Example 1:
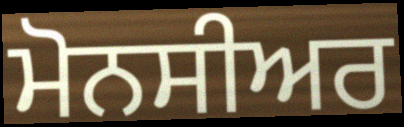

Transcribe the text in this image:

ਮੋਨਸੀਅਰ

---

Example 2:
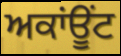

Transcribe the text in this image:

ਅਕਾਂਊਂਟ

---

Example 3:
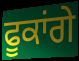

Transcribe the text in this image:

ਫੂਕਾਂਗੇ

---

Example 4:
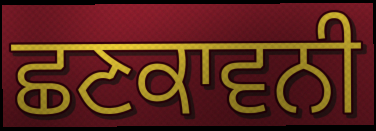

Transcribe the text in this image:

ਛਣਕਾਵਨੀ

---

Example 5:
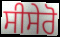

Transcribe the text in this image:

ਸੀਸੇਰੋ